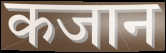
कजान